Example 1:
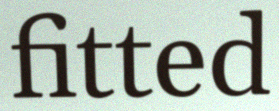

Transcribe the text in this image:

fitted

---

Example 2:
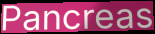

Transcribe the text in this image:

Pancreas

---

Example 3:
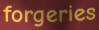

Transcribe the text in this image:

forgeries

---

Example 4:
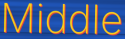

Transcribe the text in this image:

Middle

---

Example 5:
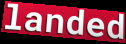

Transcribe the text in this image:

landed